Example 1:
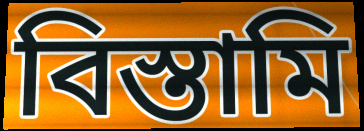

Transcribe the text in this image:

বিস্তামি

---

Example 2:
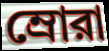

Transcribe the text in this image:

ম্রোরা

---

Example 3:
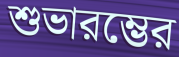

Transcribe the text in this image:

শুভারম্ভের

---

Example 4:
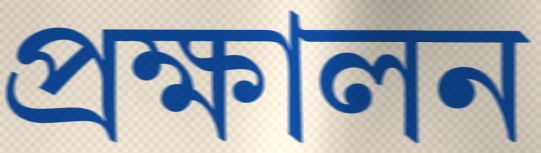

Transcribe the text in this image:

প্রক্ষালন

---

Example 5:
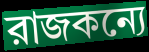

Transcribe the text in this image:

রাজকন্যে